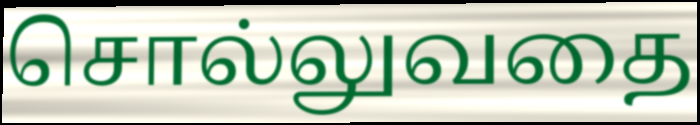
சொல்லுவதை